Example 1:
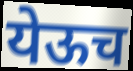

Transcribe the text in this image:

येऊच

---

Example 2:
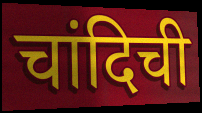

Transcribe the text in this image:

चांदिची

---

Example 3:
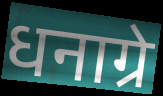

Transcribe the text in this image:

धनाग्रे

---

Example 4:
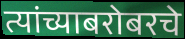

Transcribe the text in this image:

त्यांच्याबरोबरचे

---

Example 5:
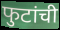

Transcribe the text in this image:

फुटांची